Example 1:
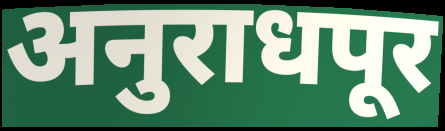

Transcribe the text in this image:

अनुराधपूर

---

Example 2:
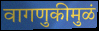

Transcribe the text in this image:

वागणुकीमुळं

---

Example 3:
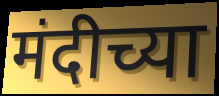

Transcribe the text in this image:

मंदीच्या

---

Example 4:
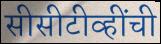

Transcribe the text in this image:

सीसीटीव्हींची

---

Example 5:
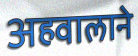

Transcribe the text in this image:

अहवालाने